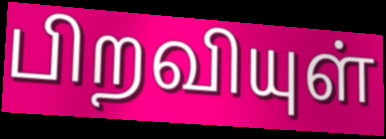
பிறவியுள்